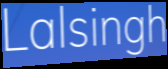
Lalsingh